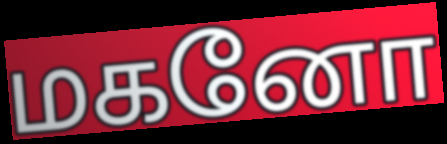
மகனோ